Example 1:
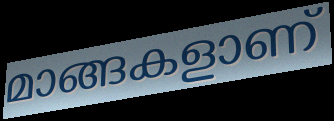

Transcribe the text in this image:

മാങ്ങകളാണ്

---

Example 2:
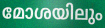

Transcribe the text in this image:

മോശയിലും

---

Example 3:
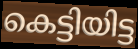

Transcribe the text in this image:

കെട്ടിയിട്ട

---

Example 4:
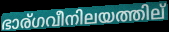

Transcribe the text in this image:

ഭാര്ഗവീനിലയത്തില്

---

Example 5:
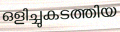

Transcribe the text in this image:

ഒളിച്ചുകടത്തിയ